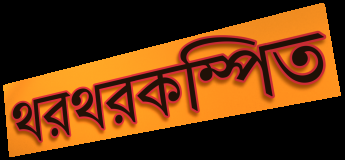
থরথরকম্পিত